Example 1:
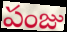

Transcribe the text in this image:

పంజు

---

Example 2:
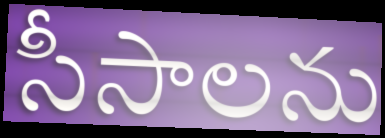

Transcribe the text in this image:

సీసాలను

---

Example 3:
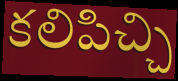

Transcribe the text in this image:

కలిపిచ్చి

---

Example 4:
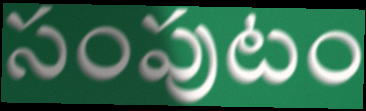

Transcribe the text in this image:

సంపుటం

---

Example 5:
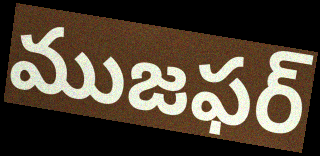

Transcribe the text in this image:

ముజఫర్